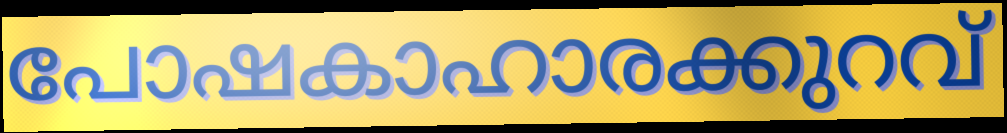
പോഷകാഹാരക്കുറവ്